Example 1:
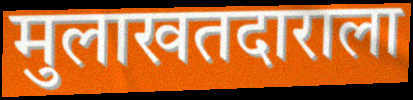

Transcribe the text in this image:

मुलाखतदाराला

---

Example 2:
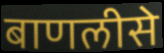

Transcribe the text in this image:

बाणलीसे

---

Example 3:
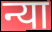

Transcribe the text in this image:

न्या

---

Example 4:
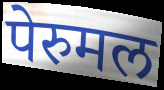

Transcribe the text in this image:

पेरुमल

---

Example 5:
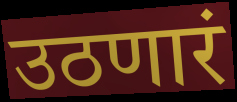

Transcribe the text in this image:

उठणारं